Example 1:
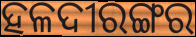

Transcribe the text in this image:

ହଳଦୀରଙ୍ଗର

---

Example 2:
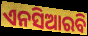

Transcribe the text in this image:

ଏନସିଆରବି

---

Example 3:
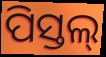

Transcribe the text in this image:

ପିସ୍ତଲ୍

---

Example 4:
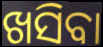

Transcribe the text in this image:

ଖସିବା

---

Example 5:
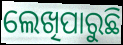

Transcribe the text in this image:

ଲେଖିପାରୁଛି